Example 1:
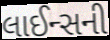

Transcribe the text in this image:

લાઈન્સની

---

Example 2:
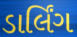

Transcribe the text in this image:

ડાર્લિંગ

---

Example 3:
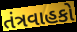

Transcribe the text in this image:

તંત્રવાહકો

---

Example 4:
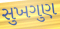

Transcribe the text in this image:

સુખગુણ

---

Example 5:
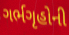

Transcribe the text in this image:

ગર્ભગૃહોની